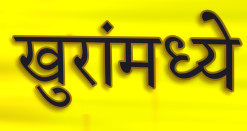
खुरांमध्ये